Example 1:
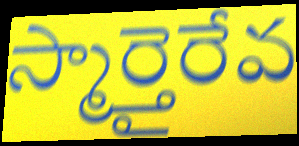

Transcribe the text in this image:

స్మార్తైరేవ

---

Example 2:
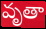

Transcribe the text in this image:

వృతా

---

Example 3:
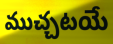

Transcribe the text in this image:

ముచ్చటయే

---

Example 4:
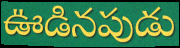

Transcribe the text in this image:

ఊడినపుడు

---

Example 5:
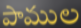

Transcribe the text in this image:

పాముల